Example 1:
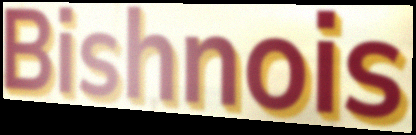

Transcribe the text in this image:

Bishnois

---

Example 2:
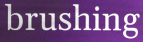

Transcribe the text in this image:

brushing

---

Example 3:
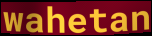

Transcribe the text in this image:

wahetan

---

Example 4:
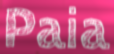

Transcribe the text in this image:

Paia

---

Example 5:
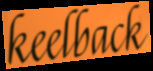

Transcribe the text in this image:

keelback